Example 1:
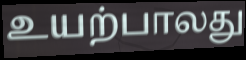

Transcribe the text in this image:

உயற்பாலது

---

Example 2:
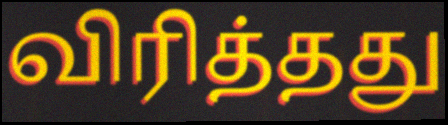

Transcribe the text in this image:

விரித்தது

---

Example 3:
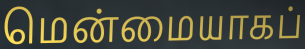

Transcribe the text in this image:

மென்மையாகப்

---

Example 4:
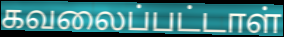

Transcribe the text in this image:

கவலைப்பட்டாள்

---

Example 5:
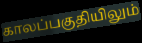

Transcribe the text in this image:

காலப்பகுதியிலும்